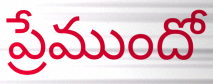
ప్రేముందో